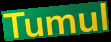
Tumul